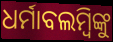
ଧର୍ମାବଲମ୍ବିଙ୍କୁ